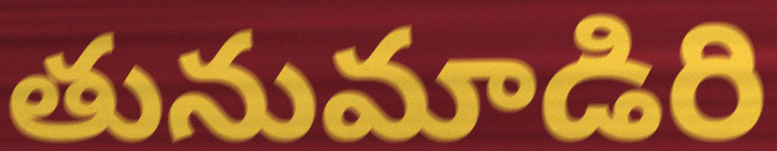
తునుమాడిరి